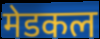
मेडकल